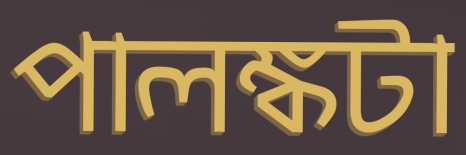
পালঙ্কটা